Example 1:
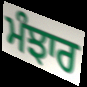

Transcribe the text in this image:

ਮੰਝਾਰ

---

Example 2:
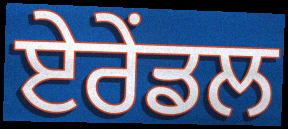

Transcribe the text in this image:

ਏਰੇਂਡਲ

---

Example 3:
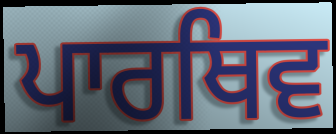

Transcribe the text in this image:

ਪਾਰਥਿਵ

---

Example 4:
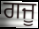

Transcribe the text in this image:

ਗਜੂ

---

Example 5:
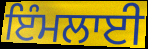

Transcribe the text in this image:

ਇੰਮਲਾਈ